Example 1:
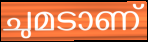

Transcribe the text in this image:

ചുമടാണ്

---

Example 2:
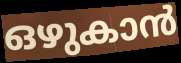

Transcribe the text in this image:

ഒഴുകാൻ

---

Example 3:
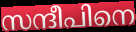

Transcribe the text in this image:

സന്ദീപിനെ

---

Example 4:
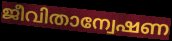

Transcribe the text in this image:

ജീവിതാന്വേഷണ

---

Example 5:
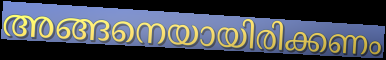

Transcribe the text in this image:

അങ്ങനെയായിരിക്കണം